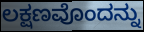
ಲಕ್ಷಣವೊಂದನ್ನು